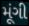
મૂંગી